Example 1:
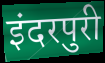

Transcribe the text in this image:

इंदरपुरी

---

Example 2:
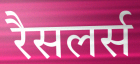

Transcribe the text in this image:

रैसलर्स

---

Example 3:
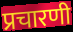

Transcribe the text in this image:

प्रचारणी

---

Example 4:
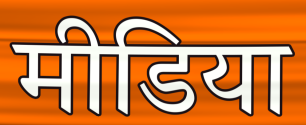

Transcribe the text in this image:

मीडिया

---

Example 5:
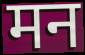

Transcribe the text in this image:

मन